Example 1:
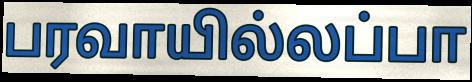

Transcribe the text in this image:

பரவாயில்லப்பா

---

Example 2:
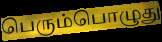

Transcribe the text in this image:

பெரும்பொழுது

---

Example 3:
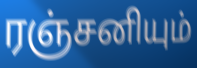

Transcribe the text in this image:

ரஞ்சனியும்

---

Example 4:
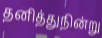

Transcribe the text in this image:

தனித்துநின்று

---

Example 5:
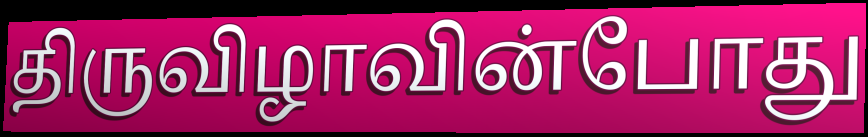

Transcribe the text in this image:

திருவிழாவின்போது